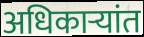
अधिकाऱ्यांत